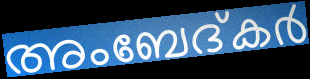
അംബേദ്കർ